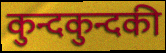
कुन्दकुन्दकी